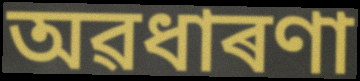
অৱধাৰণা